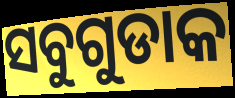
ସବୁଗୁଡାକ